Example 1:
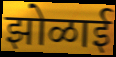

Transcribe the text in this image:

झोळाई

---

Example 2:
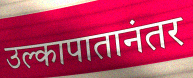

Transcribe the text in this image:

उल्कापातानंतर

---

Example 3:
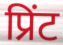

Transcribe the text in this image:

प्रिंट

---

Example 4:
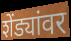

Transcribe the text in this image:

शेंड्यांवर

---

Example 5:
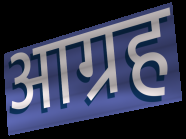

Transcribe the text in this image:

आग्रह